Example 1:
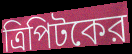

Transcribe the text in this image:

ত্রিপিটকের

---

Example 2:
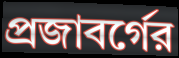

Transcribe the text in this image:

প্রজাবর্গের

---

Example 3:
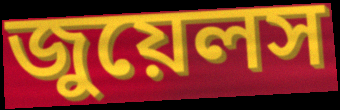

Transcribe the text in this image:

জুয়েলস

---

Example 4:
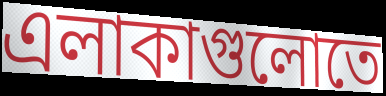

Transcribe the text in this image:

এলাকাগুলোতে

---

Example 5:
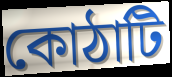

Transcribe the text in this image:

কোঠাটি